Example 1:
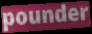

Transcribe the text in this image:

pounder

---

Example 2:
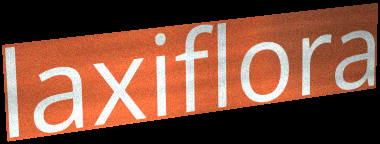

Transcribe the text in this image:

laxiflora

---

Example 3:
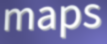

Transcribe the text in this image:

maps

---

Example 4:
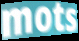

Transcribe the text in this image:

mots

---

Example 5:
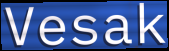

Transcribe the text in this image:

Vesak